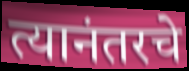
त्यानंतरचे